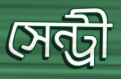
সেন্ট্রী